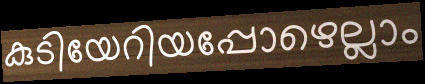
കുടിയേറിയപ്പോഴെല്ലാം